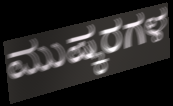
ಮುಷ್ಕರಗಳ